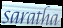
saratha